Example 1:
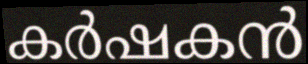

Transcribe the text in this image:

കർഷകൻ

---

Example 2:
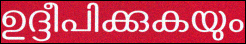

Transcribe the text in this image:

ഉദ്ദീപിക്കുകയും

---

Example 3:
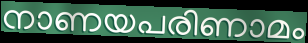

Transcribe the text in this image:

നാണയപരിണാമം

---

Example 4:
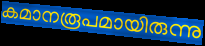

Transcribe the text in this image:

കമാനരൂപമായിരുന്നു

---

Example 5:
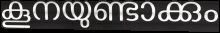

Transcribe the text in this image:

കൂനയുണ്ടാക്കും